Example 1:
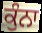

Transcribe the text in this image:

ਕੁੰਨਾ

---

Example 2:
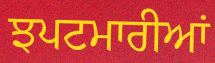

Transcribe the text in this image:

ਝਪਟਮਾਰੀਆਂ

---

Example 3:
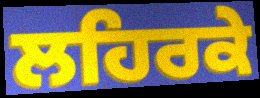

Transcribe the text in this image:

ਲਹਿਰਕੇ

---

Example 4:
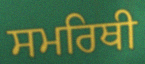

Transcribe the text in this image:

ਸਮਰਿਥੀ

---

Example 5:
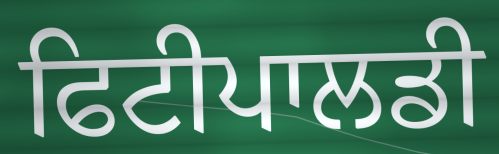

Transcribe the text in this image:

ਫਿਟੀਪਾਲਡੀ